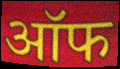
ऑफ